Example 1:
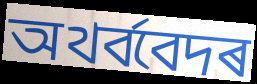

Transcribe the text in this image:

অথৰ্ববেদৰ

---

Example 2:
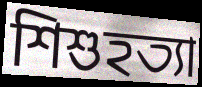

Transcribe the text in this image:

শিশুহত্যা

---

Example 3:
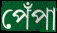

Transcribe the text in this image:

পেঁপা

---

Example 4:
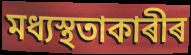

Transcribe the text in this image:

মধ্যস্থতাকাৰীৰ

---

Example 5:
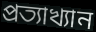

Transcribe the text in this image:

প্ৰত্যাখ্যান